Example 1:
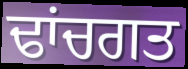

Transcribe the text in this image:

ਢਾਂਚਗਤ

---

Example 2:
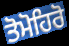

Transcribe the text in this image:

ਤੋਮੋਹਿਰੋ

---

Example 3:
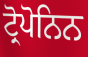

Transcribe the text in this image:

ਟ੍ਰੋਪੋਨਿਨ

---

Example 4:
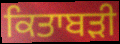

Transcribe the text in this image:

ਕਿਤਾਬੜੀ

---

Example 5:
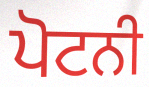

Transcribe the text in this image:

ਪੋਟਨੀ